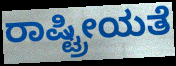
ರಾಷ್ಟ್ರೀಯತೆ